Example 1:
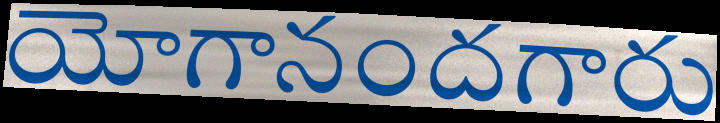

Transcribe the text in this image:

యోగానందగారు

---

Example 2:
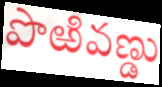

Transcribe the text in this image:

పొఱివణ్డు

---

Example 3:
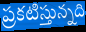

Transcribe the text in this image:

ప్రకటిస్తున్నది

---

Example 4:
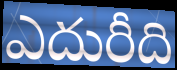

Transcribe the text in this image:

ఎదురీది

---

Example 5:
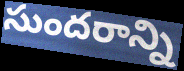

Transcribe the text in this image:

సుందరాన్ని